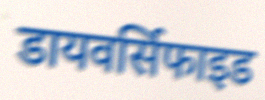
डायवर्सिफाइड